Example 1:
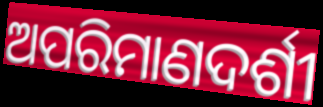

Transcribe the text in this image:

ଅପରିମାଣଦର୍ଶୀ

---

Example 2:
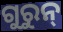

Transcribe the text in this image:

ଗୁରୁନ୍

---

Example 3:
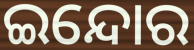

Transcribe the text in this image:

ଇନ୍ଦୋର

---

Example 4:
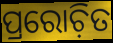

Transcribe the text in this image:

ପ୍ରରୋଚ଼ିତ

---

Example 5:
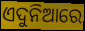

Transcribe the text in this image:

ଏଦୁନିଆରେ